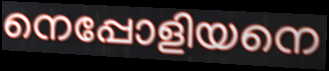
നെപ്പോളിയനെ